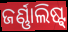
ଜର୍ଣ୍ଣାଲିଷ୍ଟ୍